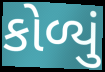
કોળ્યું